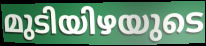
മുടിയിഴയുടെ